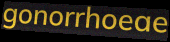
gonorrhoeae